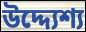
উদ্দ্যেশ্য